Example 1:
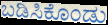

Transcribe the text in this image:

ಬಡಿಸಿಕೊಂಡು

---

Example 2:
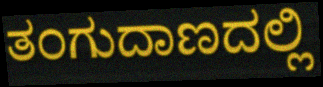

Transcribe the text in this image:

ತಂಗುದಾಣದಲ್ಲಿ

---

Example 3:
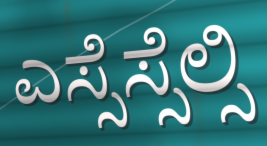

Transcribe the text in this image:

ಎಸ್ಸೆಸ್ಸೆಲ್ಸಿ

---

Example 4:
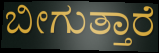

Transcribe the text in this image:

ಬೀಗುತ್ತಾರೆ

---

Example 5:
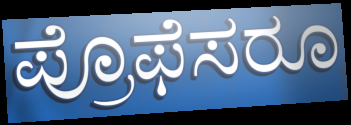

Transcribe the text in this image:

ಪ್ರೊಫೆಸರೂ